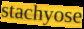
stachyose